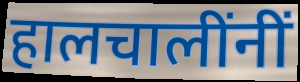
हालचालींनीं